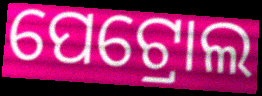
ପେଟ୍ରୋଲ